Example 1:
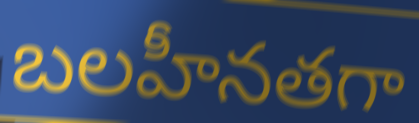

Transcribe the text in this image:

బలహీనతగా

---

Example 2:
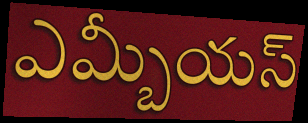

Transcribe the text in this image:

ఎమ్బీయస్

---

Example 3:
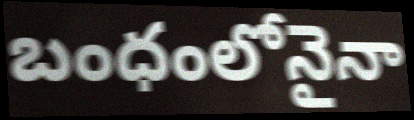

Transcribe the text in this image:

బంధంలోనైనా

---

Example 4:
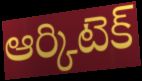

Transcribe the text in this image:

ఆర్కిటెక్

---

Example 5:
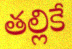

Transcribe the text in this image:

తల్లికే